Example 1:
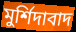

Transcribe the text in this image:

মুর্শিদাবাদ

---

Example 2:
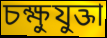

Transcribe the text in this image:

চক্ষুযুক্তা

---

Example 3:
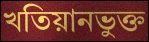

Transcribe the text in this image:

খতিয়ানভুক্ত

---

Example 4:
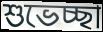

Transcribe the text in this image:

শুভেচ্ছা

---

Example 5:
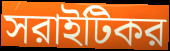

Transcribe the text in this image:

সরাইটিকর